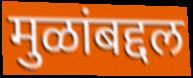
मुळांबद्दल